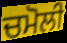
ਚਮੋਲੀ